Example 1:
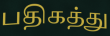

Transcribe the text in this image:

பதிகத்து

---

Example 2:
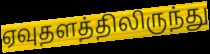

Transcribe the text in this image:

ஏவுதளத்திலிருந்து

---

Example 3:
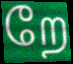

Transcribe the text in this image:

றே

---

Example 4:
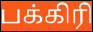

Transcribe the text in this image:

பக்கிரி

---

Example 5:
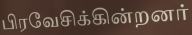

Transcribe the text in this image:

பிரவேசிக்கின்றனர்